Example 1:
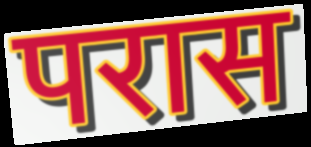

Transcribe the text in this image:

परास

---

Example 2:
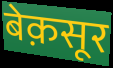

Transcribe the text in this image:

बेक़सूर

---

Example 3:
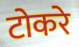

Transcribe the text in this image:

टोकरे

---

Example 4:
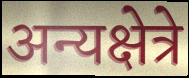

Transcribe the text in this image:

अन्यक्षेत्रे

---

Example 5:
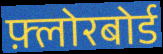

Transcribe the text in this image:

फ़्लोरबोर्ड